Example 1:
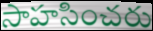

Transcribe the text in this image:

సాహసించరు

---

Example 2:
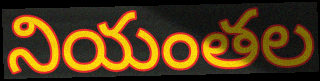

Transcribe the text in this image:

నియంతల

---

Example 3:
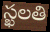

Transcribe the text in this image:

స్ఖలతి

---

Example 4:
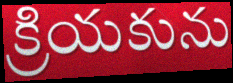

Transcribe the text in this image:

క్రియకును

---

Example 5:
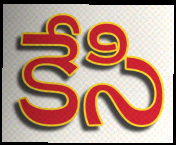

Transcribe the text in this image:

కేసి